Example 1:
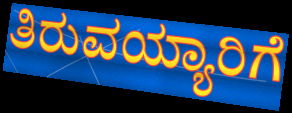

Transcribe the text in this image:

ತಿರುವಯ್ಯಾರಿಗೆ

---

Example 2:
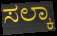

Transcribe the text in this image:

ಸಲ್ಕಾ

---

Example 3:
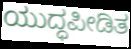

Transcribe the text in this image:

ಯುದ್ಧಪೀಡಿತ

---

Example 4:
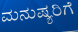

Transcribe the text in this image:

ಮನುಷ್ಯರಿಗೆ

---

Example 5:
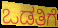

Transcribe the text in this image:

ಒಡತಿಗೆ